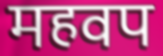
महवप